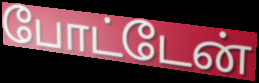
போட்டேன்